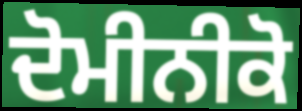
ਦੋਮੀਨੀਕੋ